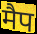
मैप